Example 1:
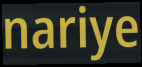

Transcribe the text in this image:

nariye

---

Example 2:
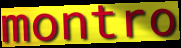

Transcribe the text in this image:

montro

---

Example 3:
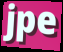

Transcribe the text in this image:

jpe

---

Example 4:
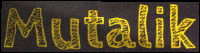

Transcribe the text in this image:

Mutalik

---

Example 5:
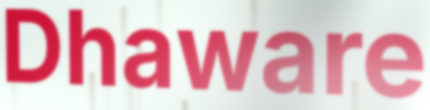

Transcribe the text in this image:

Dhaware